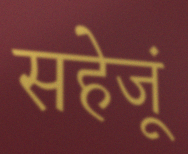
सहेजूं